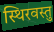
स्थिरवस्तु